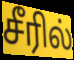
சீரில்